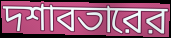
দশাবতারের